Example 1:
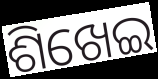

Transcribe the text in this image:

ଶିଖେଇ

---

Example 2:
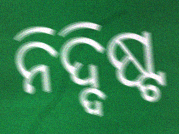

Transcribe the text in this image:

ନିଦ୍ଦିଷ୍ଟ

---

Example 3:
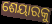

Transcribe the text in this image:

ଶେୟାରକୁ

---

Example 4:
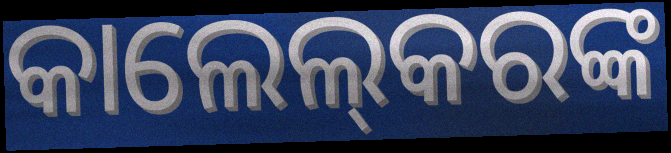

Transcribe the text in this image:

କାଲେଲ୍‌କରଙ୍କ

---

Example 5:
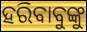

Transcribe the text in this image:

ହରିବାବୁଙ୍କୁ